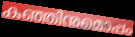
കുഞ്ഞിനുമൊപ്പം